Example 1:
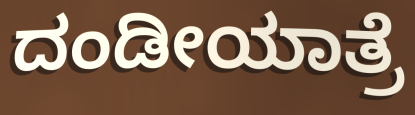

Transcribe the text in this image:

ದಂಡೀಯಾತ್ರೆ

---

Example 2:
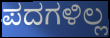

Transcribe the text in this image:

ಪದಗಳಿಲ್ಲ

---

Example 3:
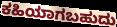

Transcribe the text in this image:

ಕಹಿಯಾಗಬಹುದು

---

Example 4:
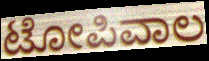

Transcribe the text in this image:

ಟೋಪಿವಾಲ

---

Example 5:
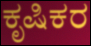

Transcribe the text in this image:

ಕೃಷಿಕರ